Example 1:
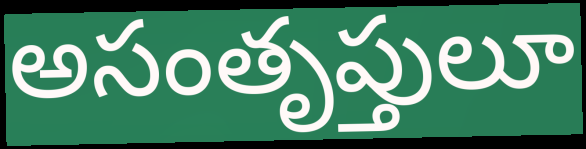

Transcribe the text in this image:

అసంతృప్తులూ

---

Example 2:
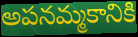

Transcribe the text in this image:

అపనమ్మకానికి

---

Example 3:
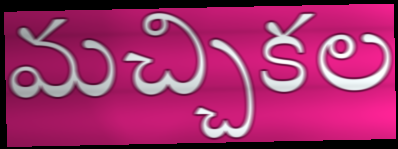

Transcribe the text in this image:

మచ్చికల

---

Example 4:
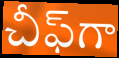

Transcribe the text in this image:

చీఫ్‌గా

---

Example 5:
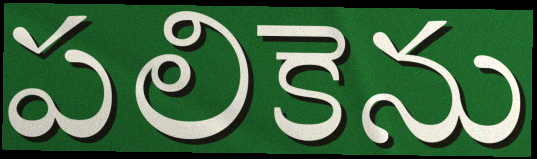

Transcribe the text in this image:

పలికెను